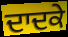
ਦਾਦਕੇ